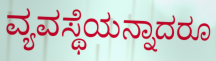
ವ್ಯವಸ್ಥೆಯನ್ನಾದರೂ